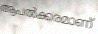
ആപൽക്കരമാണ്